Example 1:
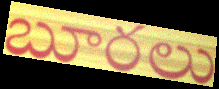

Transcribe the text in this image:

బూరలు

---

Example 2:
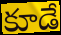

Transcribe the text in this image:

కూడే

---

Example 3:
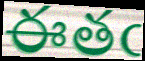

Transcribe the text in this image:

ఈతఁ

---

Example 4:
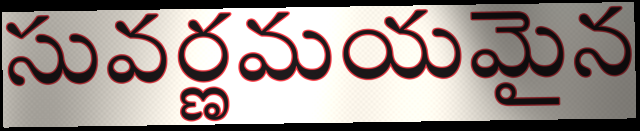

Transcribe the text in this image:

సువర్ణమయమైన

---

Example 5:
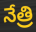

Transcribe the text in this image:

నేత్రి